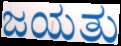
ಜಯತು